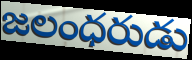
జలంధరుడు